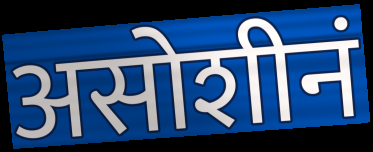
असोशीनं